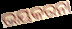
ଭୟକରନା